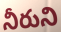
నీరుని